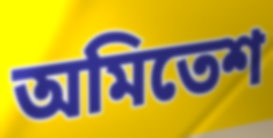
অমিতেশ